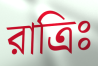
রাত্রিঃ